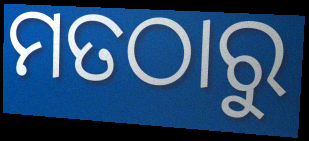
ମତଠାରୁ